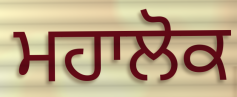
ਮਹਾਲੋਕ